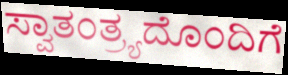
ಸ್ವಾತಂತ್ರ್ಯದೊಂದಿಗೆ